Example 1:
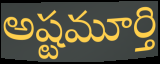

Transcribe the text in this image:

అష్టమూర్తి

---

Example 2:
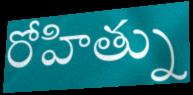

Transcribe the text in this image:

రోహిత్ను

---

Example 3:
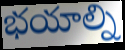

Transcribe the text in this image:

భయాల్ని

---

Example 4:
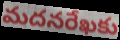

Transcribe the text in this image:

మదనరేఖకు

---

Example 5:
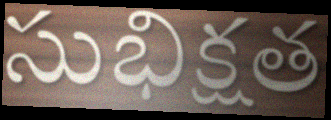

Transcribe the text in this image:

సుభిక్షత